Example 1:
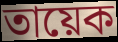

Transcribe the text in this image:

তায়েক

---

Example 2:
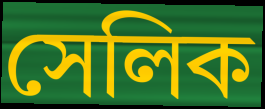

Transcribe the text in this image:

সেলিক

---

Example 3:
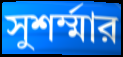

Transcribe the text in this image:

সুশর্ম্মার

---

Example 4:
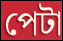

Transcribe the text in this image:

পেটা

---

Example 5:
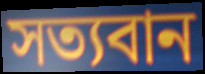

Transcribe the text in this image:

সত্যবান